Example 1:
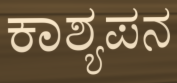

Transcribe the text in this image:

ಕಾಶ್ಯಪನ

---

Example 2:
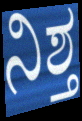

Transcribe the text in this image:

ನಿಶ್ತ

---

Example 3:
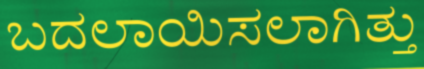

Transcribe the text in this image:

ಬದಲಾಯಿಸಲಾಗಿತ್ತು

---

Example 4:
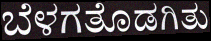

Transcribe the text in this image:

ಬೆಳಗತೊಡಗಿತು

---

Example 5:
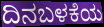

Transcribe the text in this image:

ದಿನಬಳಕೆಯ